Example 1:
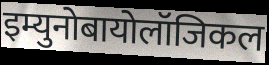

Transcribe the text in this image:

इम्युनोबायोलॉजिकल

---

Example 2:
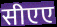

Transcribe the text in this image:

सीएए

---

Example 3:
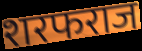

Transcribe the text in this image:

शरफराज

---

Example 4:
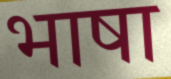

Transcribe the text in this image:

भाषा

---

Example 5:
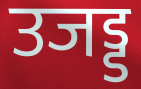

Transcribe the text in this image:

उजड्ड